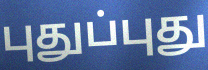
புதுப்புது